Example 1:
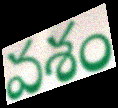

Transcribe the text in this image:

వశం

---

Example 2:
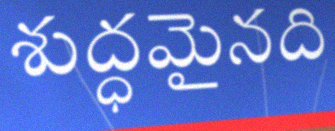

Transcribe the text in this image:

శుద్ధమైనది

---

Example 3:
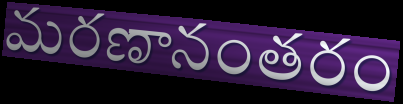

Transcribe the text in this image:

మరణానంతరం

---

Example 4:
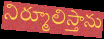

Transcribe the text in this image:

నిర్మూలిస్తాను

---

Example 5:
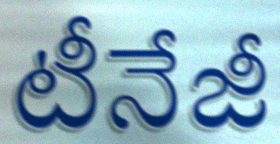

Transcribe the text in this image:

టీనేజీ